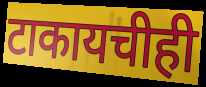
टाकायचीही